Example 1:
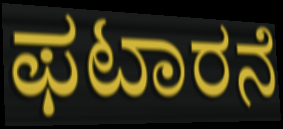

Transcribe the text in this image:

ಫಟಾರನೆ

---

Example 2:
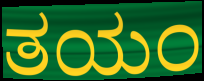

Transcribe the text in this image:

ತಯಂ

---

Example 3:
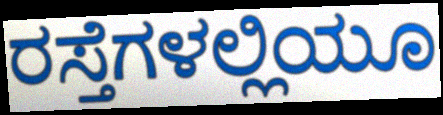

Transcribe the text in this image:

ರಸ್ತೆಗಳಲ್ಲಿಯೂ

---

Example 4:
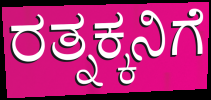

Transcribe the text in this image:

ರತ್ನಕ್ಕನಿಗೆ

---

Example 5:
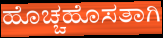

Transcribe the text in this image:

ಹೊಚ್ಚಹೊಸತಾಗಿ